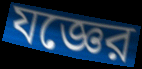
যজ্ঞের